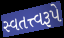
સ્વતત્ત્વરૂપે